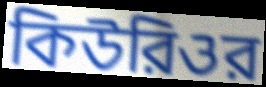
কিউরিওর